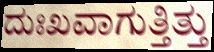
ದುಃಖವಾಗುತ್ತಿತ್ತು